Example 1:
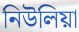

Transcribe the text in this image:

নিউলিয়া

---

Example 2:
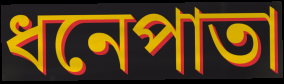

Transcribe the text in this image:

ধনেপাতা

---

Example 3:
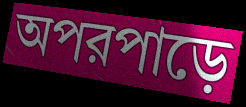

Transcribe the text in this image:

অপরপাড়ে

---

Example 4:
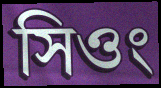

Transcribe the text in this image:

সিওং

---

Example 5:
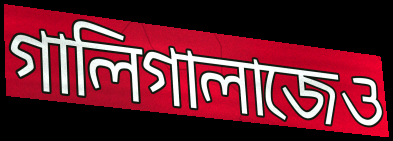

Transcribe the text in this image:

গালিগালাজেও